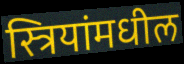
स्त्रियांमधील